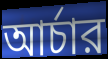
আর্চার